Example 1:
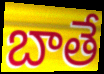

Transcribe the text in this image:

బాతే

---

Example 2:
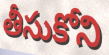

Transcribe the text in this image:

తీసుకోని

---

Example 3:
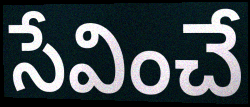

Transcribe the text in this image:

సేవించే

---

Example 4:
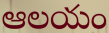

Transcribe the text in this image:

ఆలయం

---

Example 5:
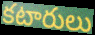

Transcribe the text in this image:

కటారులు